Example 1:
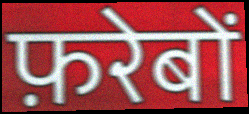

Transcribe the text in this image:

फ़रेबों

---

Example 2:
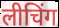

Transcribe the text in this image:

लीचिंग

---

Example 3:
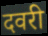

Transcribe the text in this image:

दवरी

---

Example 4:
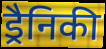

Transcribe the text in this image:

ड्रैनिकी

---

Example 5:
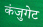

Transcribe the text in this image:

कंजुगेट